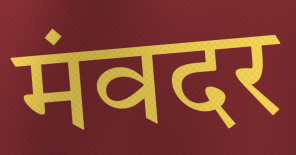
मंवदर